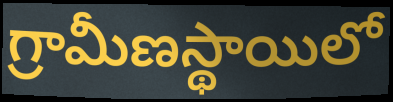
గ్రామీణస్థాయిలో